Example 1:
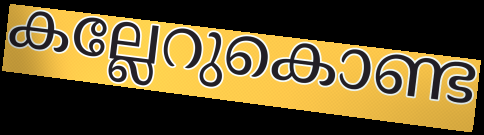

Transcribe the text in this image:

കല്ലേറുകൊണ്ട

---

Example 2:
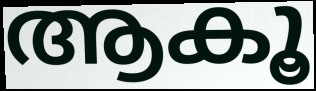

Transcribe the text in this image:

ആകൂ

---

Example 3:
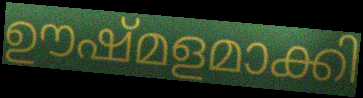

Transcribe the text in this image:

ഊഷ്മളമാക്കി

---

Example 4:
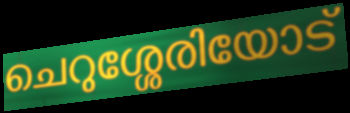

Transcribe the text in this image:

ചെറുശ്ശേരിയോട്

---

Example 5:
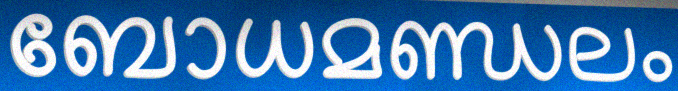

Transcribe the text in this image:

ബോധമണ്ഡലം